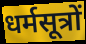
धर्मसूत्रों